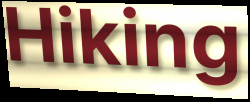
Hiking